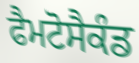
ਫੈਮਟੋਸੈਕੰਡ